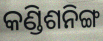
କଣ୍ଡିଶନିଙ୍ଗ